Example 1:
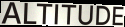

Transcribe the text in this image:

ALTITUDE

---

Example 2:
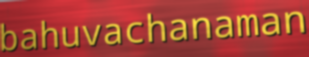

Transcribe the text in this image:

bahuvachanaman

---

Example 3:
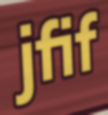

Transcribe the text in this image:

jfif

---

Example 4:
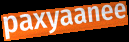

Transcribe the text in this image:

paxyaanee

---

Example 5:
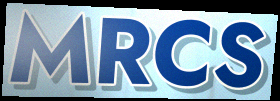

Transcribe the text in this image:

MRCS